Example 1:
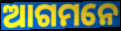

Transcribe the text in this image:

ଆଗମନେ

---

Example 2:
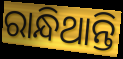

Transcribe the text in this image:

ରାନ୍ଧିଥାନ୍ତି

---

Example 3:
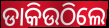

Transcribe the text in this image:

ଡାକିଉଠିଲେ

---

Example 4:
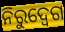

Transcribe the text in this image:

ନିରୁଦ୍ବେଗ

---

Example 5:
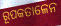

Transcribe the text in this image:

ରୂପକତାଳେନ